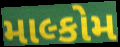
માલ્કોમ